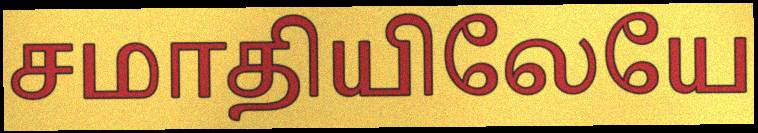
சமாதியிலேயே